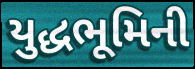
યુદ્ધભૂમિની